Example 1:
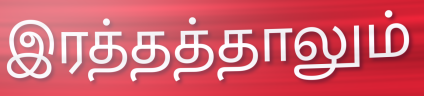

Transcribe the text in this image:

இரத்தத்தாலும்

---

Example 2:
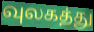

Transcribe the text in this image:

வுலகத்து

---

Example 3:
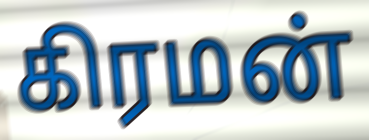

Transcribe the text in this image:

கிரமன்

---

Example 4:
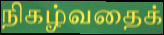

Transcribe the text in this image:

நிகழ்வதைக்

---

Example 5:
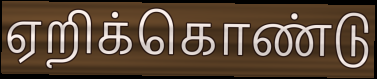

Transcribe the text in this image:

ஏறிக்கொண்டு